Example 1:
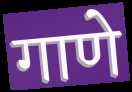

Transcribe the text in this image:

गाणे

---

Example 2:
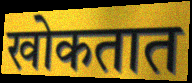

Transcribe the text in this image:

खोकतात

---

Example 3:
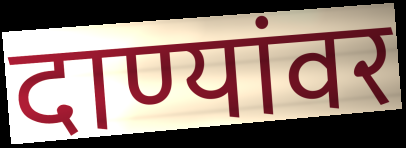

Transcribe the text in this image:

दाण्यांवर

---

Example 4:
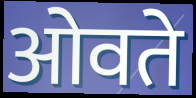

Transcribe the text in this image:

ओवते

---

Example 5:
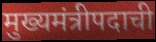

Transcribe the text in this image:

मुख्यमंत्रीपदाची